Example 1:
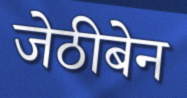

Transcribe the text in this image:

जेठीबेन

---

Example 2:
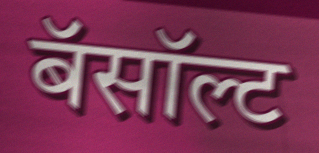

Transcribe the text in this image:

बॅसॉल्ट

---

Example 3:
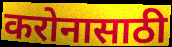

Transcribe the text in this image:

करोनासाठी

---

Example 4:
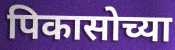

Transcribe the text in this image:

पिकासोच्या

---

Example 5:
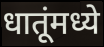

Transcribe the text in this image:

धातूंमध्ये